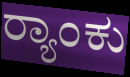
ರ್‍ಯಾಂಕು